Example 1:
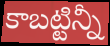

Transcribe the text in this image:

కాబట్టిన్నీ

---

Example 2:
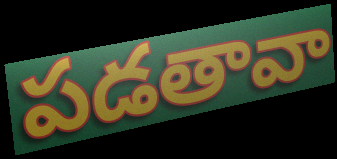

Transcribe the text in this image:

పడతావా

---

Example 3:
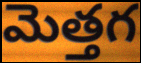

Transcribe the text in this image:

మెత్తగ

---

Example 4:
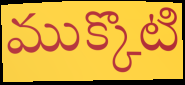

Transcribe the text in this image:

ముక్కొటి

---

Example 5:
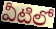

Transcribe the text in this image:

వీటిలో